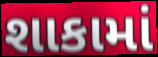
શાકામાં